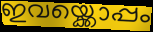
ഇവയ്ക്കൊപ്പം